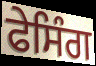
ਫੇਸਿੰਗ